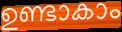
ഉണ്ടാകാം